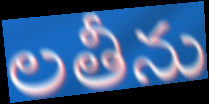
లతీను